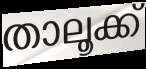
താലൂക്ക്